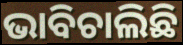
ଭାବିଚାଲିଛି